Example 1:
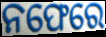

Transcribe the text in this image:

ନଫେରେ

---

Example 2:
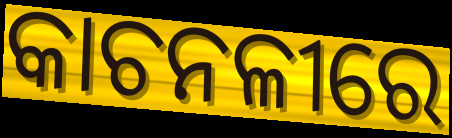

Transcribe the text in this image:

କାଚନଳୀରେ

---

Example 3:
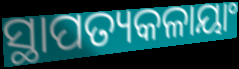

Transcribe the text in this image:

ସ୍ଥାପତ୍ୟକଳାୟାଂ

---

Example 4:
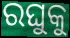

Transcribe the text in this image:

ରଘୁକୁ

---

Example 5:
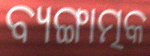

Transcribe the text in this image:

ବ୍ୟଙ୍ଗାତ୍ମକ